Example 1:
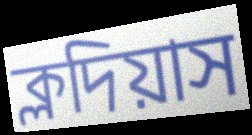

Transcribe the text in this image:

ক্লদিয়াস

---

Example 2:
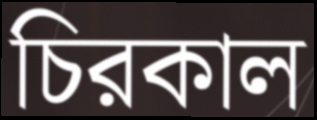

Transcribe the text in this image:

চিরকাল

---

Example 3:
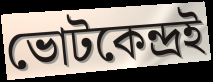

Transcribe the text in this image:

ভোটকেন্দ্রই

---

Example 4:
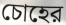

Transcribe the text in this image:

চোহের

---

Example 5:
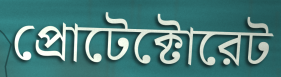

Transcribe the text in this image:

প্রোটেক্টোরেট